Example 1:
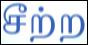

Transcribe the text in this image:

சீற்ற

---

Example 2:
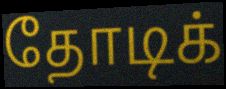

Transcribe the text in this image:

தோடிக்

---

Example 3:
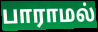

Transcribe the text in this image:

பாராமல்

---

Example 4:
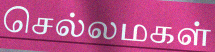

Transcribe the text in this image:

செல்லமகள்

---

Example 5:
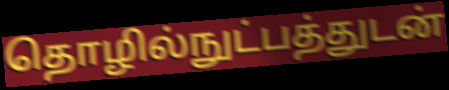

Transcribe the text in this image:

தொழில்நுட்பத்துடன்